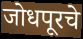
जोधपूरचे